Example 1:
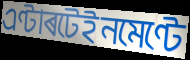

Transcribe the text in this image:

এণ্টাৰটেইনমেণ্টে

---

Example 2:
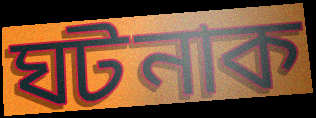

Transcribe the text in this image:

ঘটনাক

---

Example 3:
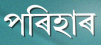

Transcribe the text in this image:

পৰিহাৰ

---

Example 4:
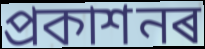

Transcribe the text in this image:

প্ৰকাশনৰ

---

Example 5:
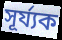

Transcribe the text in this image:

সূৰ্য্যক